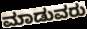
ಮಾಡುವರು